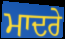
ਮਾਦਰੇ